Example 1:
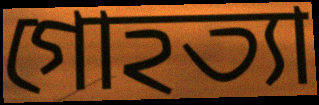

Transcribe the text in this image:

গোহত্যা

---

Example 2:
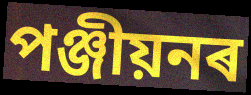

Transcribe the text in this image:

পঞ্জীয়নৰ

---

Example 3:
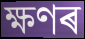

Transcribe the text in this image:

ক্ষণৰ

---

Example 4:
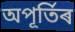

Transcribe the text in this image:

অপূৰ্তিৰ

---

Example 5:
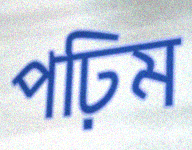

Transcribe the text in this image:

পঢ়িম